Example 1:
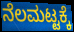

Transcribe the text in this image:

ನೆಲಮಟ್ಟಕ್ಕೆ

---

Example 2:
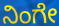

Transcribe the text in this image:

ನಿಂಗೇ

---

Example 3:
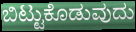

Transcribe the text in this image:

ಬಿಟ್ಟುಕೊಡುವುದು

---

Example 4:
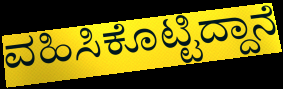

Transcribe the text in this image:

ವಹಿಸಿಕೊಟ್ಟಿದ್ದಾನೆ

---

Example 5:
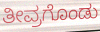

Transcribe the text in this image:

ತೀವ್ರಗೊಂಡು